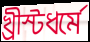
খ্রীস্টধর্মে